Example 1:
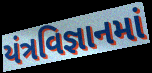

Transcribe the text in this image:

યંત્રવિજ્ઞાનમાં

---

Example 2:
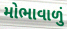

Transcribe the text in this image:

મોભાવાળું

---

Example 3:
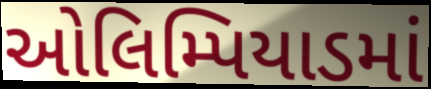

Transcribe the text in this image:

ઓલિમ્પિયાડમાં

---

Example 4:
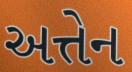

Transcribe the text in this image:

અત્તેન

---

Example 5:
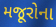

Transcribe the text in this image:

મજૂરોના